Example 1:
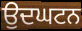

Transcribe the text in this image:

ਉਦਘਟਨ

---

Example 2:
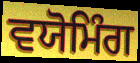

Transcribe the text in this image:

ਵਯੋਮਿੰਗ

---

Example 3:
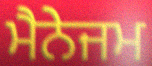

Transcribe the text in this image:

ਮੈਨੇਜਮ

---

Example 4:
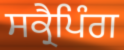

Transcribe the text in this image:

ਸਕ੍ਰੈਪਿੰਗ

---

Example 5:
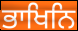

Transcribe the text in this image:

ਭਾਖਿਨਿ